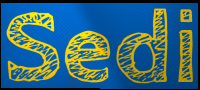
Sedi